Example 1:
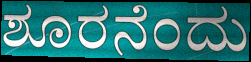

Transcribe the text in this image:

ಶೂರನೆಂದು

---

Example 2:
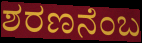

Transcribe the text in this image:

ಶರಣನೆಂಬ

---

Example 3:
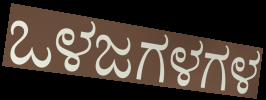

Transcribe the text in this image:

ಒಳಜಗಳಗಳ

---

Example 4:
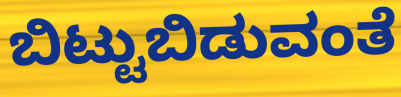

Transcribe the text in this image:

ಬಿಟ್ಟುಬಿಡುವಂತೆ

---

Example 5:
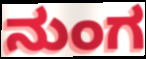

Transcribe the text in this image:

ನುಂಗ